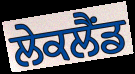
ਲੇਕਲੈਂਡ